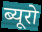
ब्यूरो